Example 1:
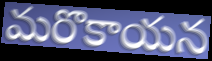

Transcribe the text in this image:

మరొకాయన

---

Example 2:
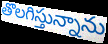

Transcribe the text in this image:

తొలగిస్తున్నాను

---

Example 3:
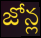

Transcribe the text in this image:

జోన్ల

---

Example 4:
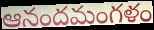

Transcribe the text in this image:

ఆనందమంగళం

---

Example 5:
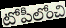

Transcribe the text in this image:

టోపీలోంచి